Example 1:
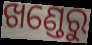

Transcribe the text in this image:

ଖଣ୍ଡେରୁ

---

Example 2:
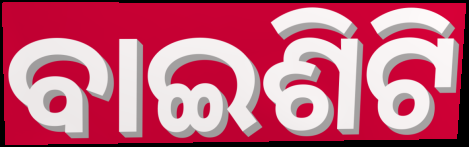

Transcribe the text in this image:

ବାଇଶିଟି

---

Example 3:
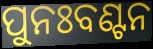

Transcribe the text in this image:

ପୁନଃବଣ୍ଟନ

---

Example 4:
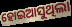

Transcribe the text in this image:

ହୋଇଆସୁଥିଲା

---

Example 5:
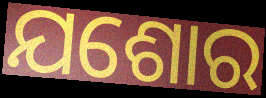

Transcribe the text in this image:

ଯଶୋର